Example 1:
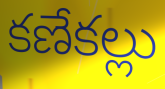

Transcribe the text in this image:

కణేకల్లు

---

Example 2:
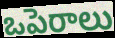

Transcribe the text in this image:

ఒపెరాలు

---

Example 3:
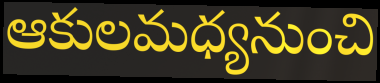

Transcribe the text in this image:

ఆకులమధ్యనుంచి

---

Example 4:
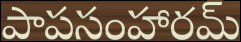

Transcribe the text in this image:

పాపసంహారమ్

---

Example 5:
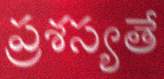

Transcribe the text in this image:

ప్రశస్యతే